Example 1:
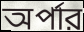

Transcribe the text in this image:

অর্পার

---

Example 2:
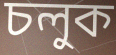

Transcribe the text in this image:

চলুক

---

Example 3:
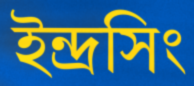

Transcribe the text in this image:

ইন্দ্রসিং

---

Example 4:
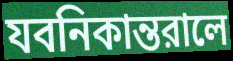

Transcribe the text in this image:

যবনিকান্তরালে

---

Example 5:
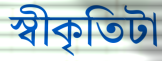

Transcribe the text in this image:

স্বীকৃতিটা